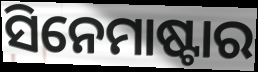
ସିନେମାଷ୍ଟାର